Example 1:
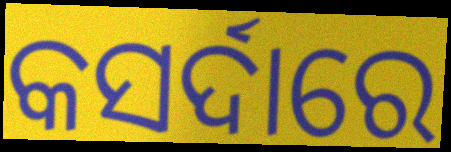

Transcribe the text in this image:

କସର୍ଦାରେ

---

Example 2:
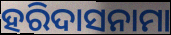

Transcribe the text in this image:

ହରିଦାସନାମା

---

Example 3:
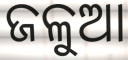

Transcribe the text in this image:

ଜଳୁଆ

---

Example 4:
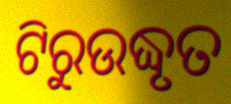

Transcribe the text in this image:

ଟିରୁଉଦ୍ଧୃତ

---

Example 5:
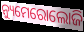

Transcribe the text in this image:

ନ୍ୟୁମେରୋଲୋଜି